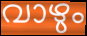
വാഴും